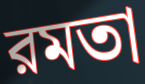
রমতা